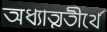
অধ্যাত্মতীর্থে